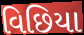
વિછિયા